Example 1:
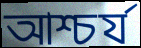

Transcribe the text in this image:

আশ্চর্য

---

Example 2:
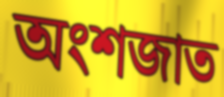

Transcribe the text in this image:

অংশজাত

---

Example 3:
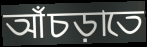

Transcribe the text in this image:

আঁচড়াতে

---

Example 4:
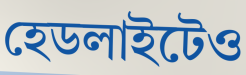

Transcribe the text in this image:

হেডলাইটেও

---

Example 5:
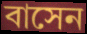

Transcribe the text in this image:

বাসেন